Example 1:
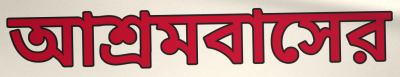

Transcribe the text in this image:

আশ্রমবাসের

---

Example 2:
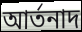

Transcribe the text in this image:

আর্তনাদ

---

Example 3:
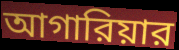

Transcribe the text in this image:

আগারিয়ার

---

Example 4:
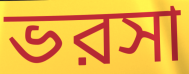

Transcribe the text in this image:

ভরসা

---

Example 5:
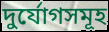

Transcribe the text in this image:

দুর্যোগসমূহ